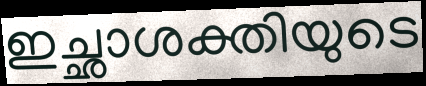
ഇച്ഛാശക്തിയുടെ